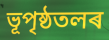
ভূপৃষ্ঠতলৰ